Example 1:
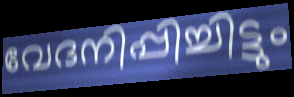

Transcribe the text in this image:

വേദനിപ്പിച്ചിട്ടും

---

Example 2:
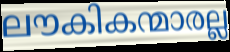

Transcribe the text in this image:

ലൗകികന്മാരല്ല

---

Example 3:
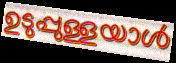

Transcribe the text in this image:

ഉടുപ്പുള്ളയാൾ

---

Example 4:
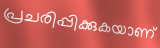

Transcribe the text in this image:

പ്രചരിപ്പിക്കുകയാണ്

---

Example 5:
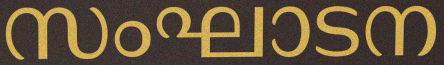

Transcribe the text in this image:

സംഘാടന